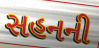
સહનની